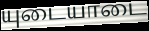
யுடையாடை